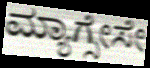
ಮ್ಯಾಗ್ಸೇಸೇ